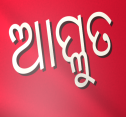
ଆପ୍ଳୁତ